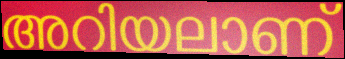
അറിയലാണ്